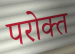
परोक्त